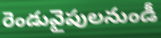
రెండువైపులనుండీ